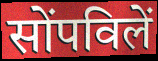
सोंपविलें